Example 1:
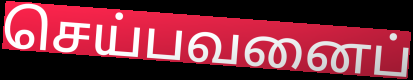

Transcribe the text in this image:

செய்பவனைப்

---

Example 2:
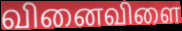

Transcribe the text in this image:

வினைவிளை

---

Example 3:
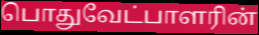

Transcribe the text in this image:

பொதுவேட்பாளரின்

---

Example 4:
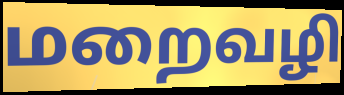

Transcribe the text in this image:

மறைவழி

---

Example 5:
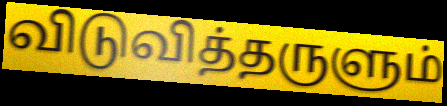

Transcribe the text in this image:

விடுவித்தருளும்